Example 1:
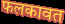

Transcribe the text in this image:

फलकावत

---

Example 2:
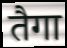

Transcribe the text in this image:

तैगा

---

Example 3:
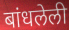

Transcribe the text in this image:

बांधलेली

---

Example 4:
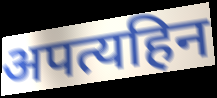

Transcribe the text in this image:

अपत्यहिन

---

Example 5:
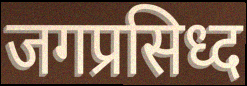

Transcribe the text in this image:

जगप्रसिध्द